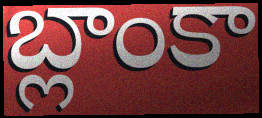
బ్లాంకా